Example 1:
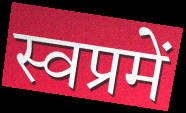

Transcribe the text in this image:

स्वप्रमें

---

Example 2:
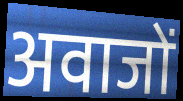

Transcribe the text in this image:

अवाजों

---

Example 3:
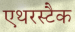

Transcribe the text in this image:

एथरस्टैक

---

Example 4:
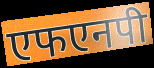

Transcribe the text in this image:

एफएनपी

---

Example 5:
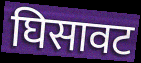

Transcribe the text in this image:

घिसावट